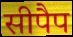
सीपैप